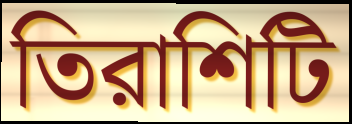
তিরাশিটি